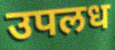
उपलध